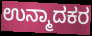
ಉನ್ಮಾದಕರ